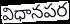
విధానపర